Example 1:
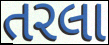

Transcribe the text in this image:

તરલા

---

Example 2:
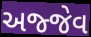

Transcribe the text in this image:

અજ્જેવ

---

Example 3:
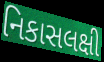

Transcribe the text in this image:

નિકાસલક્ષી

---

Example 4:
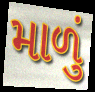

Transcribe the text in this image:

માળું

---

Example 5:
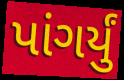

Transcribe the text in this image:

પાંગર્યું